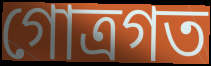
গোত্রগত